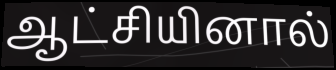
ஆட்சியினால்